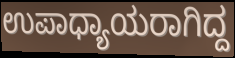
ಉಪಾಧ್ಯಾಯರಾಗಿದ್ದ